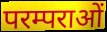
परम्पराओं